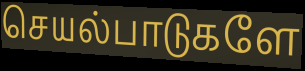
செயல்பாடுகளே